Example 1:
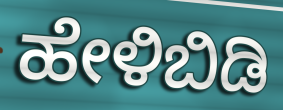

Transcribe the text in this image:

ಹೇಳಿಬಿಡಿ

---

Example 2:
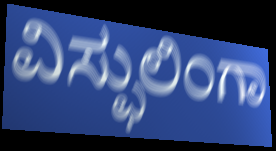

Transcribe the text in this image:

ವಿಸ್ಫುಲಿಂಗಾ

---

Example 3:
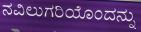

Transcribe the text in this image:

ನವಿಲುಗರಿಯೊಂದನ್ನು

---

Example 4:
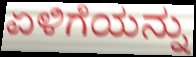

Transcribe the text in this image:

ಏಳಿಗೆಯನ್ನು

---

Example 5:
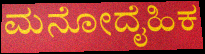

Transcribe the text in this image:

ಮನೋದೈಹಿಕ